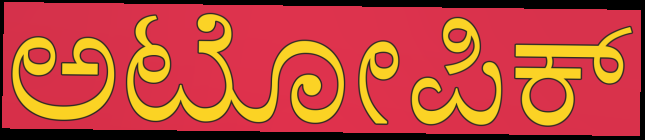
ಅಟೋಪಿಕ್